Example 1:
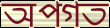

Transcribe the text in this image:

অপগত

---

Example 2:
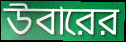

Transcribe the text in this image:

উবারের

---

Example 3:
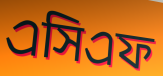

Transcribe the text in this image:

এসিএফ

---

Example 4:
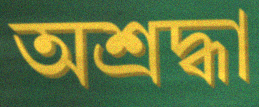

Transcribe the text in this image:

অশ্রদ্ধা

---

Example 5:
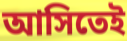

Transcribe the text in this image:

আসিতেই